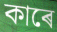
কাৰে